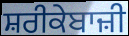
ਸ਼ਰੀਕੇਬਾਜ਼ੀ